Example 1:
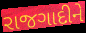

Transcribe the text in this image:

રાજગાદીને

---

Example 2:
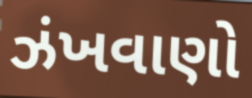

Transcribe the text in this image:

ઝંખવાણો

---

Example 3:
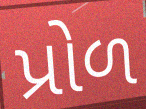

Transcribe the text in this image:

પ્રોળ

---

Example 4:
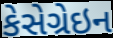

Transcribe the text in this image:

કેસેગ્રેઇન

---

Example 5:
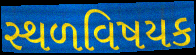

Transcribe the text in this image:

સ્થળવિષયક